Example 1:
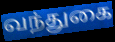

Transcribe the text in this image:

வந்துகை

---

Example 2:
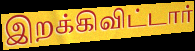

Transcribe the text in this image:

இறக்கிவிட்டார்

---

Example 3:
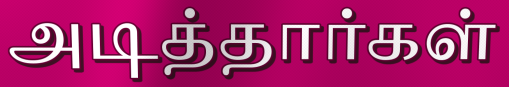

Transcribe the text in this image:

அடித்தார்கள்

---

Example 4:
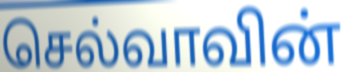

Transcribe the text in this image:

செல்வாவின்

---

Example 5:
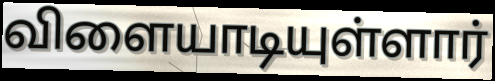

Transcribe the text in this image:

விளையாடியுள்ளார்